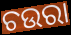
ଚଉରା